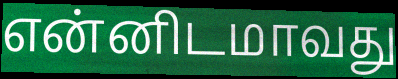
என்னிடமாவது